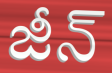
జీన్